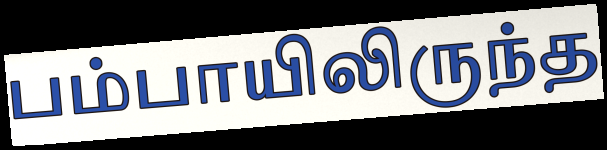
பம்பாயிலிருந்த